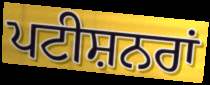
ਪਟੀਸ਼ਨਰਾਂ